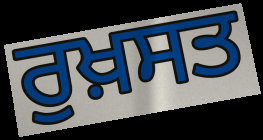
ਰੁਖ਼ਸਤ